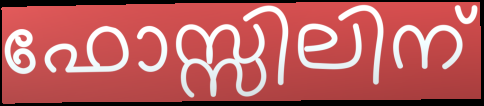
ഫോസ്സിലിന്